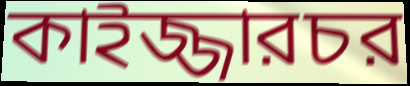
কাইজ্জারচর